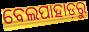
ବେଲପାହାଡ଼ରୁ